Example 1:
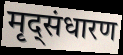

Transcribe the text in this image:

मृद्संधारण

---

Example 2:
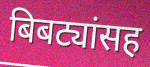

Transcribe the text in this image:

बिबट्यांसह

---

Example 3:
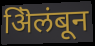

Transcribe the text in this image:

ऄिलंबून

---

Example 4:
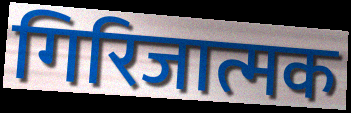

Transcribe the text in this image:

गिरिजात्मक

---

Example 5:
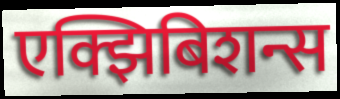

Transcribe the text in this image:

एक्झिबिशन्स